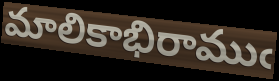
మాలికాభిరాముఁ